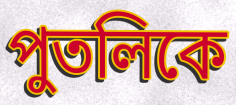
পুতলিকে